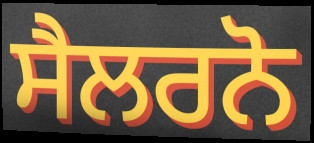
ਸੈਲਰਨੋ